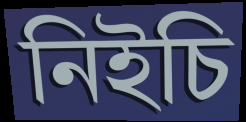
নিইচি